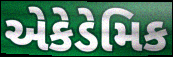
એકેડેમિક